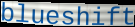
blueshift